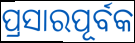
ପ୍ରସାରପୂର୍ବକ